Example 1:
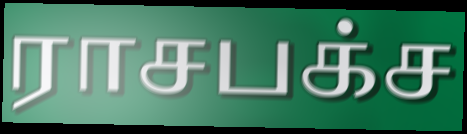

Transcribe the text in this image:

ராசபக்ச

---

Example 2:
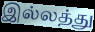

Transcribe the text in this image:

இல்லத்து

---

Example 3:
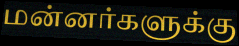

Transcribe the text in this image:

மன்னர்களுக்கு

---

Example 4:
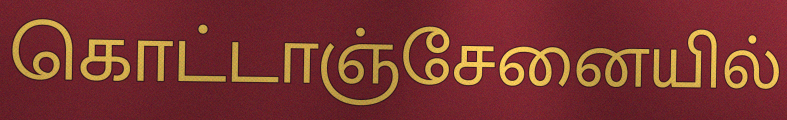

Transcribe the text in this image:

கொட்டாஞ்சேனையில்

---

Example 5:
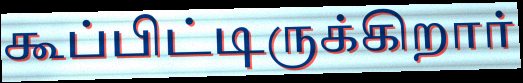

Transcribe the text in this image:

கூப்பிட்டிருக்கிறார்